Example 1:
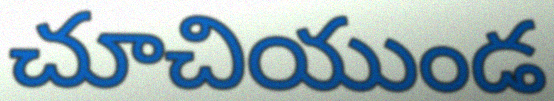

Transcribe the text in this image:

చూచియుండ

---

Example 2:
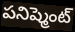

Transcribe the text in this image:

పనిష్మెంట్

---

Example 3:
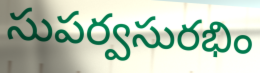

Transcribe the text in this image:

సుపర్వసురభిం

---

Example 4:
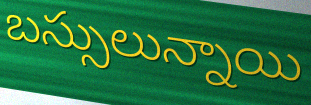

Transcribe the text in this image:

బస్సులున్నాయి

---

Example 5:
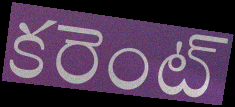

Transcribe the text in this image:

కరెంట్